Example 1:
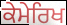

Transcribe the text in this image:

ਕੇਮੇਰਿਖ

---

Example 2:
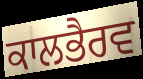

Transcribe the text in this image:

ਕਾਲਭੈਰਵ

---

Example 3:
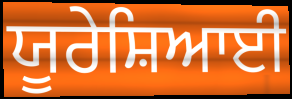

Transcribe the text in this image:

ਯੂਰੇਸ਼ਿਆਈ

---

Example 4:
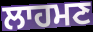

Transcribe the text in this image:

ਲਾਹਮਣ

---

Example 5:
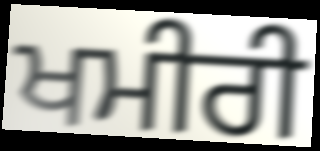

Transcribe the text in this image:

ਖਮੀਰੀ